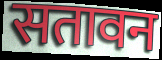
सतावन